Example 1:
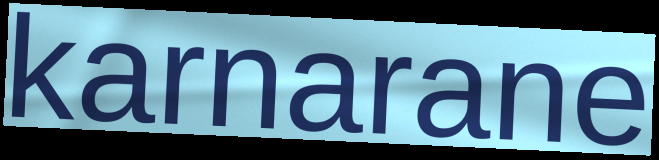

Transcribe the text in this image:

karnarane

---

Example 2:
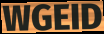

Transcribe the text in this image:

WGEID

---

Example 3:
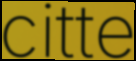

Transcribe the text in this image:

citte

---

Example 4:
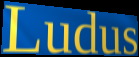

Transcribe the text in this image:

Ludus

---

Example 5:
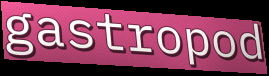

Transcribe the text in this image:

gastropod